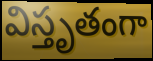
విస్తృతంగా